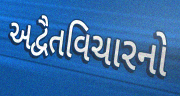
અદ્વૈતવિચારનો